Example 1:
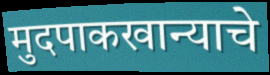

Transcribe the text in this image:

मुदपाकखान्याचे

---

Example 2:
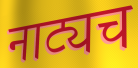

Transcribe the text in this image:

नाट्यच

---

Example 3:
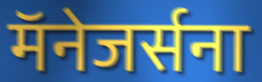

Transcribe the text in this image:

मॅनेजर्सना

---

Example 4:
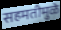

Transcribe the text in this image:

सहमतीमुळे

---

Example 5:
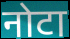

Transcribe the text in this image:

नोटा